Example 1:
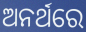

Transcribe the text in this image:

ଅନର୍ଥରେ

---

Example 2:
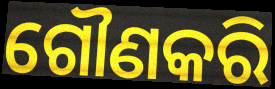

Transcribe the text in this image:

ଗୌଣକରି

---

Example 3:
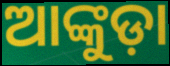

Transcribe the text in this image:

ଆଙ୍କୁଡ଼ା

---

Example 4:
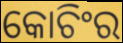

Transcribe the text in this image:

କୋଚିଂର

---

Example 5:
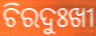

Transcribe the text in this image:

ଚିରଦୁଃଖୀ